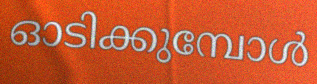
ഓടിക്കുമ്പോൾ